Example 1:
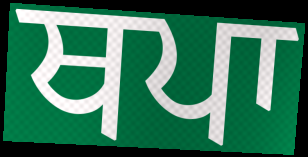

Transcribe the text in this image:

ਥਪਾ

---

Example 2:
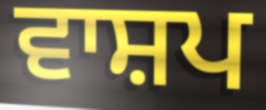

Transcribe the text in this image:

ਵਾਸ਼ਪ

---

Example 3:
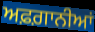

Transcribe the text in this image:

ਅਫ਼ਗ਼ਾਨੀਆਂ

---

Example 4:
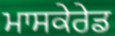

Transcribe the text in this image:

ਮਾਸਕੇਰੇਡ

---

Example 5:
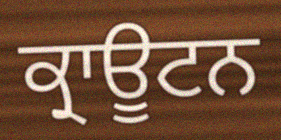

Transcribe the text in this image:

ਕ੍ਰਾਊਟਨ